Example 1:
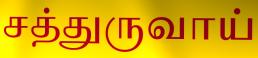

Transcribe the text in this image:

சத்துருவாய்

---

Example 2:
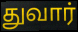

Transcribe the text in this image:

துவார்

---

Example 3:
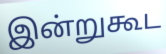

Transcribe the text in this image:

இன்றுகூட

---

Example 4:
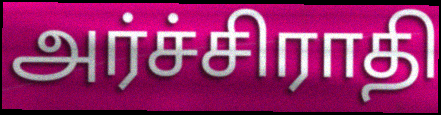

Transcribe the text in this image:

அர்ச்சிராதி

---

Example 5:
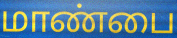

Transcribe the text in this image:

மாண்பை